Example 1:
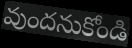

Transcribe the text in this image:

వుందనుకోండి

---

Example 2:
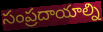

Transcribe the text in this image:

సంప్రదాయాల్ని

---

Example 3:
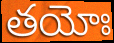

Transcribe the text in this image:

తయోః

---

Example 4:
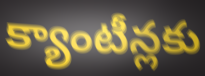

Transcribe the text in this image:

క్యాంటీన్లకు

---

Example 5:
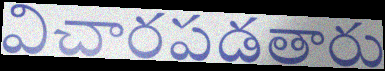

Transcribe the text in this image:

విచారపడతారు